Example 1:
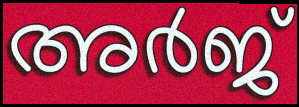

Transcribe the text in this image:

അർജ്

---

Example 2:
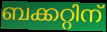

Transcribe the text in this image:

ബക്കറ്റിന്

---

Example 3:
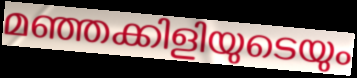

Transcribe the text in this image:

മഞ്ഞക്കിളിയുടെയും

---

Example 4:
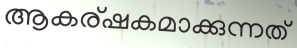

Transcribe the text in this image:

ആകര്ഷകമാക്കുന്നത്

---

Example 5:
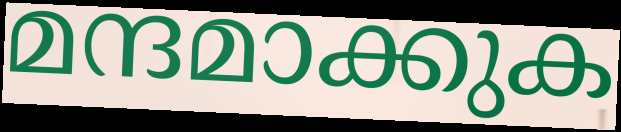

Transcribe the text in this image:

മന്ദമാക്കുക